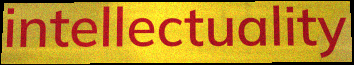
intellectuality